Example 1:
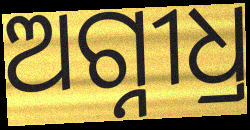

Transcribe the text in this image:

ଅଗ୍ନୀଧ୍ର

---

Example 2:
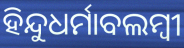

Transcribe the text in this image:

ହିନ୍ଦୁଧର୍ମାବଲମ୍ବୀ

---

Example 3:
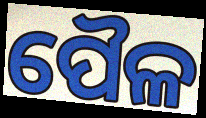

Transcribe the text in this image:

ପୈଳ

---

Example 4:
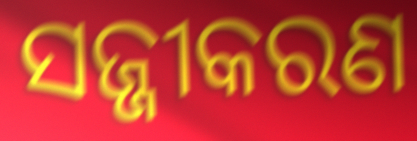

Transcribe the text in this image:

ସଜ୍ଜୀକରଣ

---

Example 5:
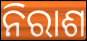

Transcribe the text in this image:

ନିରାଶ